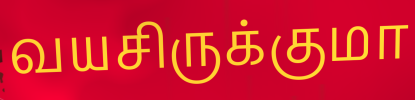
வயசிருக்குமா